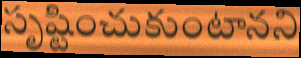
సృష్టించుకుంటానని